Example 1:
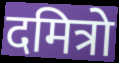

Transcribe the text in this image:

दमित्रो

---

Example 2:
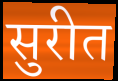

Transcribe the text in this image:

सुरीत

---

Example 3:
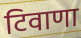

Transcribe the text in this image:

टिवाणा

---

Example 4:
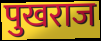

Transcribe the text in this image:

पुखराज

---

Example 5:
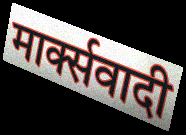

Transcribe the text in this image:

मार्क्सवादी